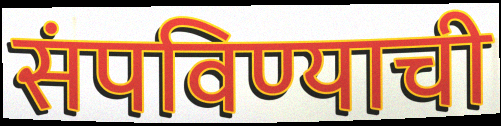
संपविण्याची